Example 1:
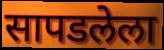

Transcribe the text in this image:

सापडलेला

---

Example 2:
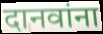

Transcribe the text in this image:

दानवांना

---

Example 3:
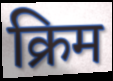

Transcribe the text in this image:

क्रिम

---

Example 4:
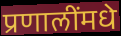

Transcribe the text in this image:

प्रणालींमधे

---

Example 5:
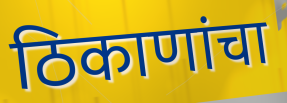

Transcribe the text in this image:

ठिकाणांचा